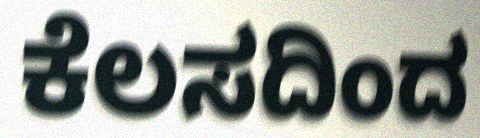
ಕೆಲಸದಿಂದ